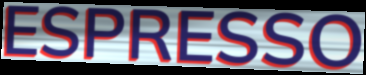
ESPRESSO